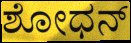
ಶೋಧನ್